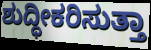
ಶುದ್ಧೀಕರಿಸುತ್ತಾ